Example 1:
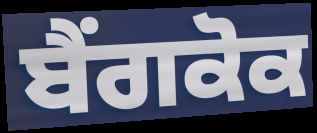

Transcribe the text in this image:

ਬੈਂਗਕੋਕ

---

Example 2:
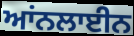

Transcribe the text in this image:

ਆਂਨਲਾਈਨ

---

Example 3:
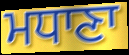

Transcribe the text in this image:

ਮਧਾਣਾ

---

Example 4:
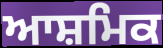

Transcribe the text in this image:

ਆਸ਼ਮਿਕ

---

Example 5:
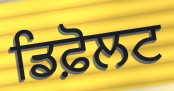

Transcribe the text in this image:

ਡਿਫ਼ੋਲਟ